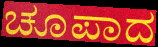
ಚೂಪಾದ